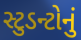
સ્ટુડન્ટોનું